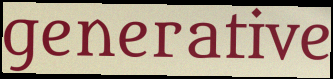
generative